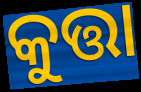
କୁତ୍ତା